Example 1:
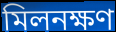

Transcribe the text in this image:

মিলনক্ষণ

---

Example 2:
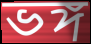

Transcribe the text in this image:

ভঙ্গ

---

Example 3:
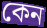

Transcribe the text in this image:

কেন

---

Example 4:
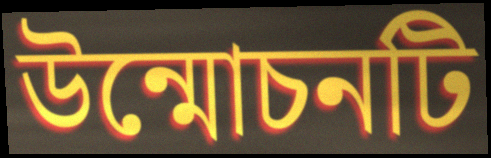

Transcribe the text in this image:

উন্মোচনটি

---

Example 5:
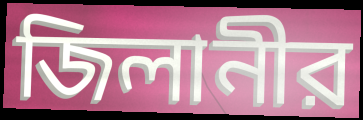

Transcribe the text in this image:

জিলানীর